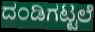
ದಂಡಿಗಟ್ಟಲೆ